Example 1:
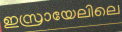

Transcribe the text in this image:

ഇസ്രായേലിലെ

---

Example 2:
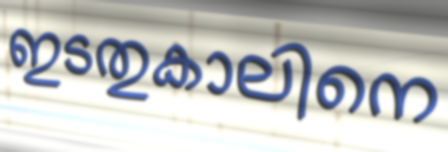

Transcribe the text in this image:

ഇടതുകാലിനെ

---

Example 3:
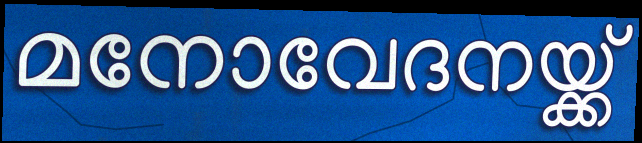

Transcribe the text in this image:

മനോവേദനയ്ക്ക്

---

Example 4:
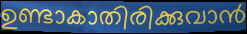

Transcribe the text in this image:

ഉണ്ടാകാതിരിക്കുവാൻ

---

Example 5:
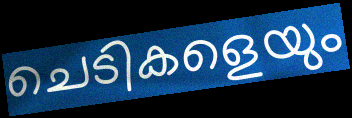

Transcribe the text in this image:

ചെടികളെയും